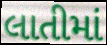
લાતીમાં